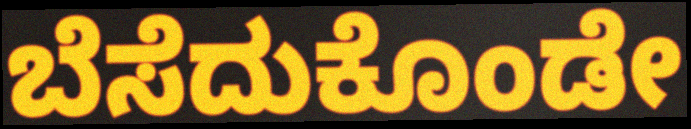
ಬೆಸೆದುಕೊಂಡೇ